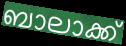
ബാലാക്ക്